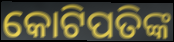
କୋଟିପତିଙ୍କ